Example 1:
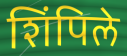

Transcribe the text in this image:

शिंपिले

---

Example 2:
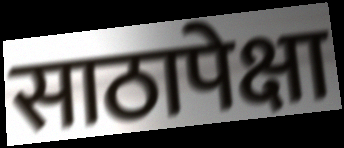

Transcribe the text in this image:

साठापेक्षा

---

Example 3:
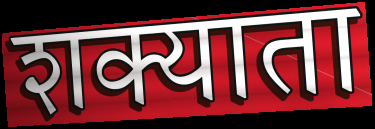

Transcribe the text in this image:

शक्याता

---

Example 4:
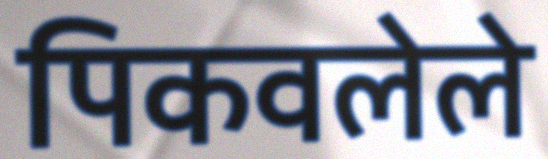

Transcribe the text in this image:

पिकवलेले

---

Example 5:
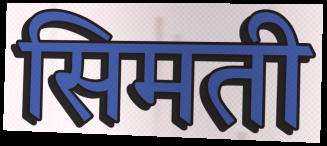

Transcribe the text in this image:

सिमती